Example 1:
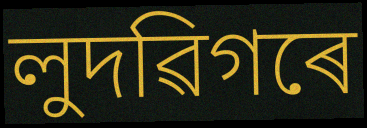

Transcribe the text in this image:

লুদৱিগৰে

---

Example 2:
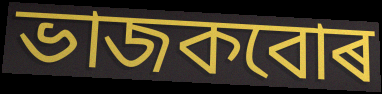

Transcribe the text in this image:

ভাজকবোৰ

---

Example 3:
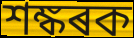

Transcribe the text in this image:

শঙ্কৰক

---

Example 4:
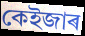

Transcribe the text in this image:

কেইজাৰ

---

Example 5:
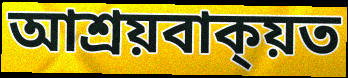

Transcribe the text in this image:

আশ্ৰয়বাক্য়ত